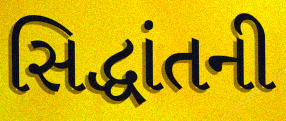
સિદ્ધાંતની